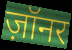
ज़ॉनर